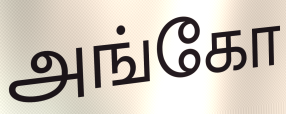
அங்கோ